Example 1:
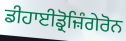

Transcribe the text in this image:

ਡੀਹਾਈਡ੍ਰੋਜ਼ਿੰਗੇਰੋਨ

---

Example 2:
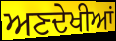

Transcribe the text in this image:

ਅਣਦੇਖੀਆਂ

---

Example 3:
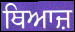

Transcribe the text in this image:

ਥਿਆਜ਼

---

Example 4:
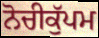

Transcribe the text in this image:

ਨੋਚੀਕੁੱਪਮ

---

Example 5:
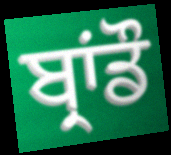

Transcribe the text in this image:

ਬ੍ਰਾਂਡੌ